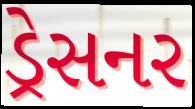
ડ્રેસનર